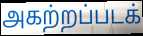
அகற்றப்படக்